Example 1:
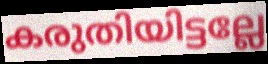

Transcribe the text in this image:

കരുതിയിട്ടല്ലേ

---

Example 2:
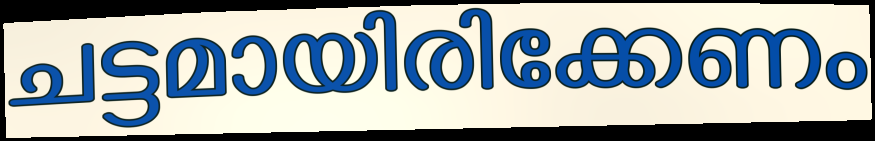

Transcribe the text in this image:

ചട്ടമായിരിക്കേണം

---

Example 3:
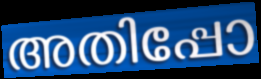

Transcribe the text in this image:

അതിപ്പോ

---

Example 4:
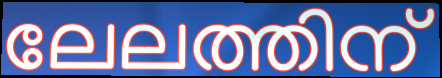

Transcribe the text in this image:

ലേലത്തിന്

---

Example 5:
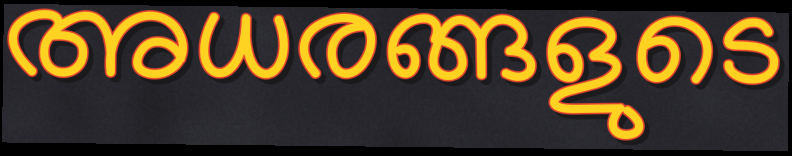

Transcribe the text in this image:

അധരങ്ങളുടെ